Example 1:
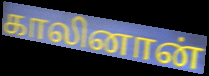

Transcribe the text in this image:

காலினான்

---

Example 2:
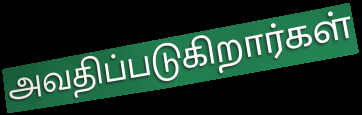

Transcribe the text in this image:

அவதிப்படுகிறார்கள்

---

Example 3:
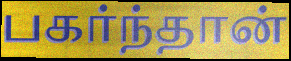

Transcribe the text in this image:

பகர்ந்தான்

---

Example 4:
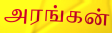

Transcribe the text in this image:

அரங்கன்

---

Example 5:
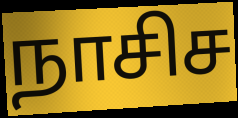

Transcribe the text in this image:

நாசிச